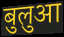
बुलुआ